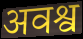
अवश्व